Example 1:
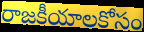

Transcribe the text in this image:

రాజకీయాలకోసం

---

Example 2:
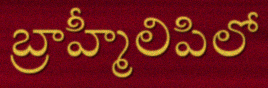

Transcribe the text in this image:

బ్రాహ్మీలిపిలో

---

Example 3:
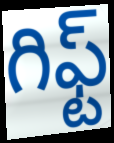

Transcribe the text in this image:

గిఫ్ట్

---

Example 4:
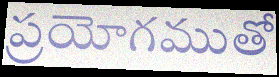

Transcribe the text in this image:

ప్రయోగముతో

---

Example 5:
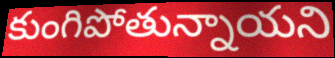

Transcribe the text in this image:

కుంగిపోతున్నాయని